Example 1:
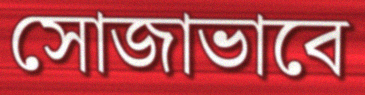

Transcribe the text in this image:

সোজাভাবে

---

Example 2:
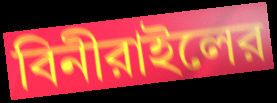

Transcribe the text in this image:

বিনীরাইলের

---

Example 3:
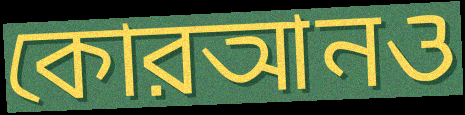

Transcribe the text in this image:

কোরআনও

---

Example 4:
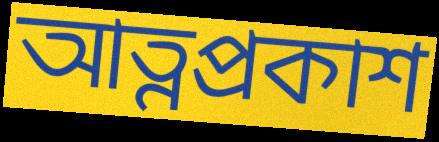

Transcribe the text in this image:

আত্নপ্রকাশ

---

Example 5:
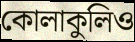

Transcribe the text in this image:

কোলাকুলিও